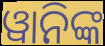
ୱାନିଙ୍କ